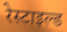
रेस्टाइल्ड